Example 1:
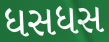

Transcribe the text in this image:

ધસધસ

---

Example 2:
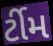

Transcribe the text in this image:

ર્ટીમ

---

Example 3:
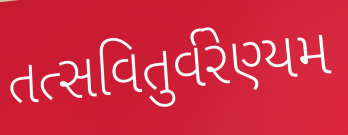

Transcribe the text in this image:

તત્સવિતુર્વરેણ્યમ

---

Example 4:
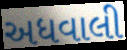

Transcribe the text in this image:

અધવાલી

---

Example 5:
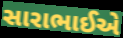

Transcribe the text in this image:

સારાભાઈએ